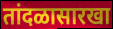
तांदळासारखा